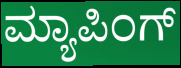
ಮ್ಯಾಪಿಂಗ್